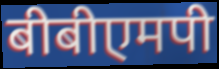
बीबीएमपी